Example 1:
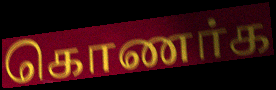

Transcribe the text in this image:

கொணர்க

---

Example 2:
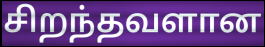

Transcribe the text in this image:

சிறந்தவளான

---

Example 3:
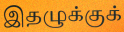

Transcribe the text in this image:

இதழுக்குக்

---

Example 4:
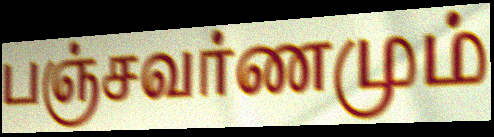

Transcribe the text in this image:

பஞ்சவர்ணமும்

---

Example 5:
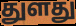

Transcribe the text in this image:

துளது